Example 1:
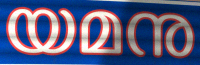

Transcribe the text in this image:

യമനു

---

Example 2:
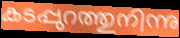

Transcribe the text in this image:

കടപ്പുറത്തുനിന്നു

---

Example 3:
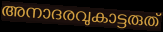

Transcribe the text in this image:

അനാദരവുകാട്ടരുത്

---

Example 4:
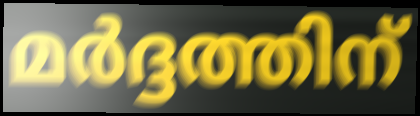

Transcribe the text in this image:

മർദ്ദത്തിന്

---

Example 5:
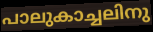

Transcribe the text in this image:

പാലുകാച്ചലിനു